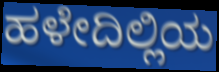
ಹಳೇದಿಲ್ಲಿಯ